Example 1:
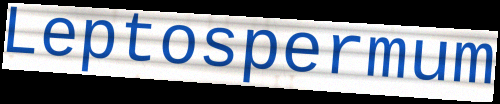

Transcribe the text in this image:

Leptospermum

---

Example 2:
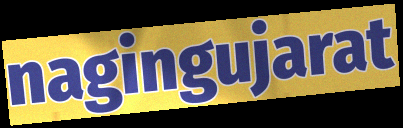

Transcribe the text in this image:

nagingujarat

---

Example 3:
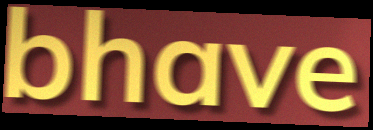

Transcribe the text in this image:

bhave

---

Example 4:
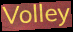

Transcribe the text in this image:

Volley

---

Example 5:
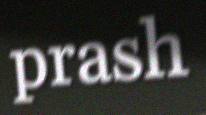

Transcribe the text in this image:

prash